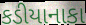
કડીયાનાકા